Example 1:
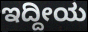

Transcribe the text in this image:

ಇದ್ದೀಯ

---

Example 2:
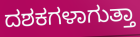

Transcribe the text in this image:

ದಶಕಗಳಾಗುತ್ತಾ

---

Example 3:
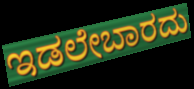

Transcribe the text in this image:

ಇಡಲೇಬಾರದು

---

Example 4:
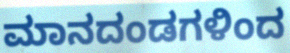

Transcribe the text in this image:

ಮಾನದಂಡಗಳಿಂದ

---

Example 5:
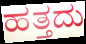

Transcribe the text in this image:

ಹತ್ತದು